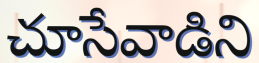
చూసేవాడిని